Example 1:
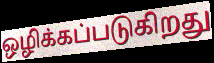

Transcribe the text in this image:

ஒழிக்கப்படுகிறது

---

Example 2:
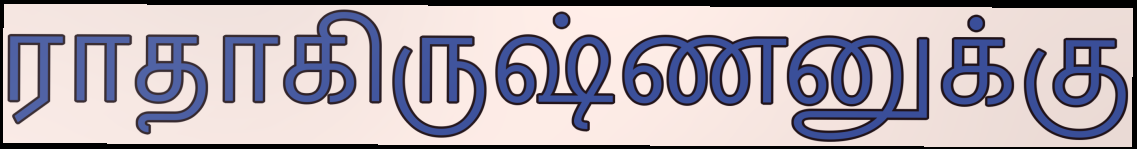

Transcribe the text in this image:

ராதாகிருஷ்ணனுக்கு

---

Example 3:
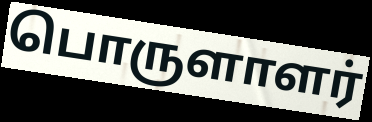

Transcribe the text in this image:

பொருளாளர்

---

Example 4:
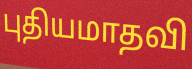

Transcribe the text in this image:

புதியமாதவி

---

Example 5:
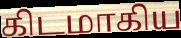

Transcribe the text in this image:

கிடமாகிய